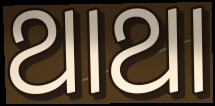
ଥାଥା